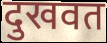
दुखवत